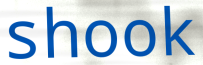
shook